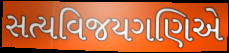
સત્યવિજયગણિએ